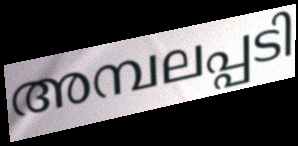
അമ്പലപ്പടി